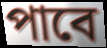
পাবে